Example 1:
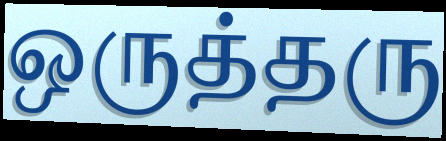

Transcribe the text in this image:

ஒருத்தரு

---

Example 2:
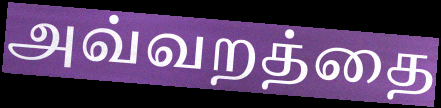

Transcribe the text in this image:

அவ்வறத்தை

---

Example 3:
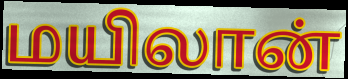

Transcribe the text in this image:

மயிலான்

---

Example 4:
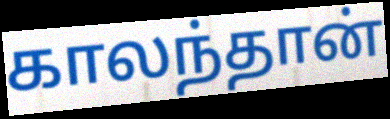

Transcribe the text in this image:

காலந்தான்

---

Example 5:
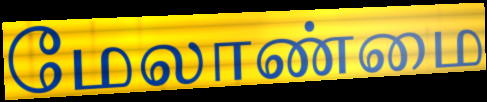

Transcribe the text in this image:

மேலாண்மை